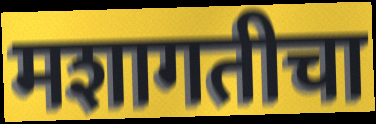
मशागतीचा